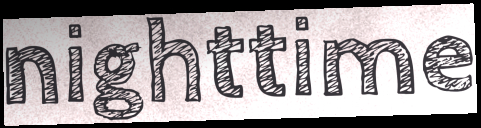
nighttime